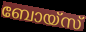
ബോയ്സ്